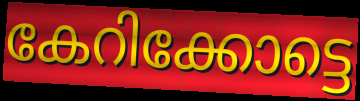
കേറിക്കോട്ടെ